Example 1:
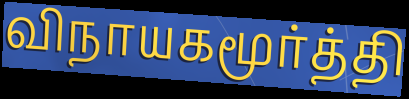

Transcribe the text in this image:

விநாயகமூர்த்தி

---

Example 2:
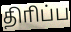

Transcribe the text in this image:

திரிப்ப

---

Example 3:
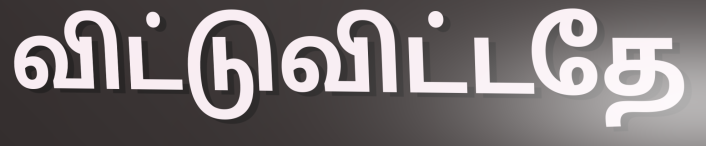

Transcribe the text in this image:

விட்டுவிட்டதே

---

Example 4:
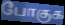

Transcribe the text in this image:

போகுக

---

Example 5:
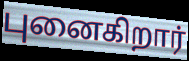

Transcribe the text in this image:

புனைகிறார்